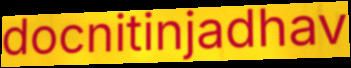
docnitinjadhav